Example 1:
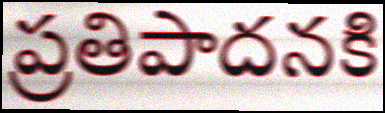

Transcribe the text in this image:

ప్రతిపాదనకి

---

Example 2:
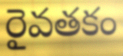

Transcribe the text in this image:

రైవతకం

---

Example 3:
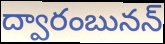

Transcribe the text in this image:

ద్వారంబునన్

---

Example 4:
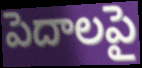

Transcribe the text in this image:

పెదాలపై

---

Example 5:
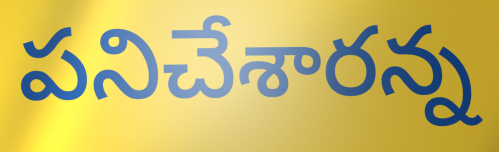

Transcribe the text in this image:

పనిచేశారన్న